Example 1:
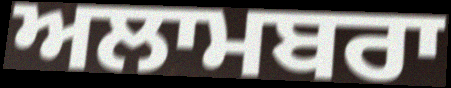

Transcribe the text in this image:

ਅਲਾਮਬਰਾ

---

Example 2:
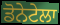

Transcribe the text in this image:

ਡੋਨੇਟੇਲਾ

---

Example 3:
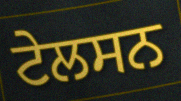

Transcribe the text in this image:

ਟੇਲਸਨ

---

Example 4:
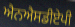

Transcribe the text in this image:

ਐਨਐਸਡੀਏਪੀ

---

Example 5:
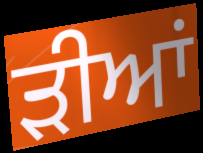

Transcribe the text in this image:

ੜੀਆਂ